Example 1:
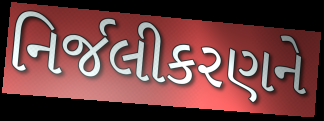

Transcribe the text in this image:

નિર્જલીકરણને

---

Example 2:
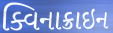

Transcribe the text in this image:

ક્વિનાક્રાઇન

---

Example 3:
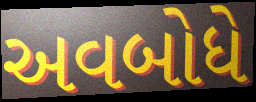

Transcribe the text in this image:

અવબોધે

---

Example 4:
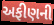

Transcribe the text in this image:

અફીણની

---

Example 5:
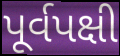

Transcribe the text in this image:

પૂર્વપક્ષી